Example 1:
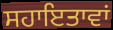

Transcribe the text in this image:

ਸਹਾਇਤਾਵਾਂ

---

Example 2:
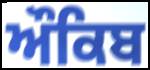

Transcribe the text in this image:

ਔਕਿਬ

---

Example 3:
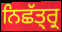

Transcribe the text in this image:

ਨਿਛੱਤ੍ਰ੍ਰ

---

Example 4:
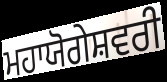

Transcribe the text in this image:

ਮਹਾਯੋਗੇਸ਼ਵਰੀ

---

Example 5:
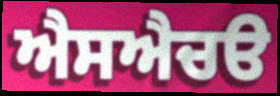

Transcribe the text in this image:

ਐਸਐਚੳ